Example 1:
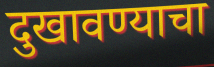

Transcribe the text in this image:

दुखावण्याचा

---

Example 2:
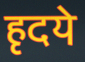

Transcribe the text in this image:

हृदये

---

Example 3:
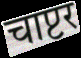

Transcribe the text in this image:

चाप्टर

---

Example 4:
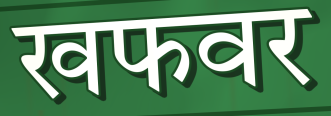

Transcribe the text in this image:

खफवर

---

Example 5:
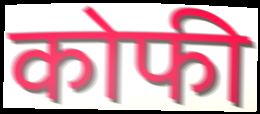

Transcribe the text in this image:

कोफी